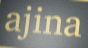
ajina